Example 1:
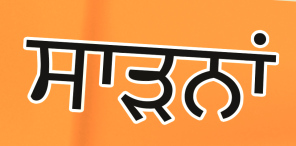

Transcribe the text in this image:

ਸਾੜਨਾਂ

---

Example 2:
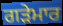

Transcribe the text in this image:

ਗੜੇਮਾਰ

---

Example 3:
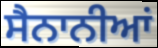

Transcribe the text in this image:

ਸੈਨਾਨੀਆਂ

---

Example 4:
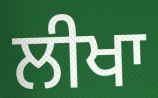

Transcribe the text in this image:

ਲੀਖਾ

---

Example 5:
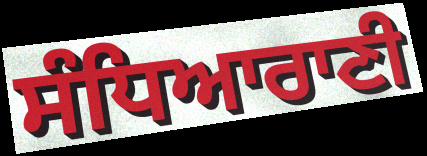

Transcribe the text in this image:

ਸੰਧਿਆਰਾਣੀ